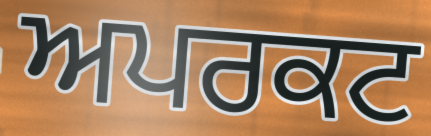
ਅਪਰਕਟ